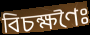
বিচক্ষণৈঃ